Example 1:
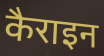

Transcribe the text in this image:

कैराइन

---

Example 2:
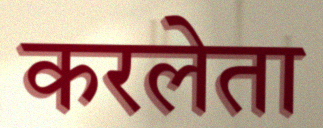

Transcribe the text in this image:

करलेता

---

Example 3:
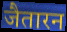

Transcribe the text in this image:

जैतारन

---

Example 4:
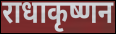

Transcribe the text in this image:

राधाकृष्णन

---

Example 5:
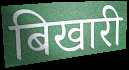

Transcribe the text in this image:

बिखारी